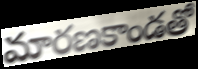
మారణకాండతో